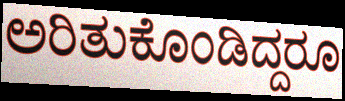
ಅರಿತುಕೊಂಡಿದ್ದರೂ